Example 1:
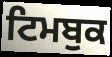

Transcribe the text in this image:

ਟਿਮਬੁਕ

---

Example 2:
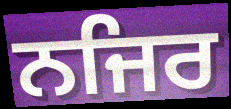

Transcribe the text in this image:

ਨਜਿਰ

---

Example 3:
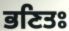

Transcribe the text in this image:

ਭਣਿਤਃ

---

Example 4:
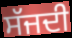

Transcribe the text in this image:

ਸੱਜਦੀ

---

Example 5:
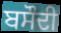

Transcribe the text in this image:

ਬਸੌਦੀ